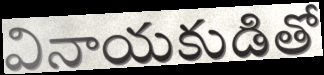
వినాయకుడితో